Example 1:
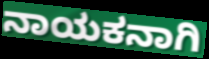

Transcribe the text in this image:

ನಾಯಕನಾಗಿ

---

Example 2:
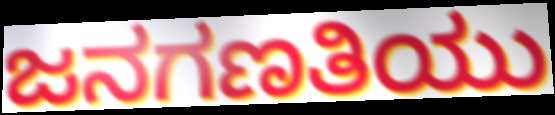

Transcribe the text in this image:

ಜನಗಣತಿಯು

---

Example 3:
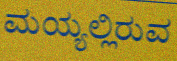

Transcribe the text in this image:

ಮಯ್ಯಲ್ಲಿರುವ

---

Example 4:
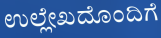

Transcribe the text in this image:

ಉಲ್ಲೇಖದೊಂದಿಗೆ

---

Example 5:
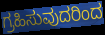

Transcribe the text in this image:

ಗ್ರಹಿಸುವುದರಿಂದ